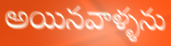
అయినవాళ్ళను